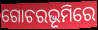
ଗୋଚରଭୂମିରେ